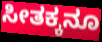
ಸೀತಕ್ಕನೂ